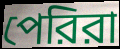
পেরিরা